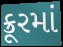
ક્રૂરમાં